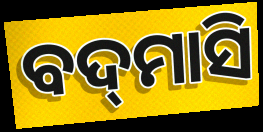
ବଦ୍‌ମାସି